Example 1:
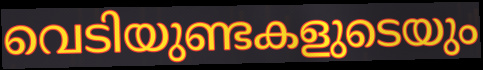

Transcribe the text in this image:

വെടിയുണ്ടകളുടെയും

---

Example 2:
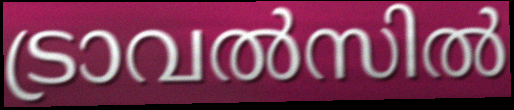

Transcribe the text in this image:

ട്രാവൽസിൽ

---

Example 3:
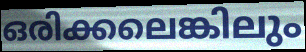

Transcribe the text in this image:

ഒരിക്കലെങ്കിലും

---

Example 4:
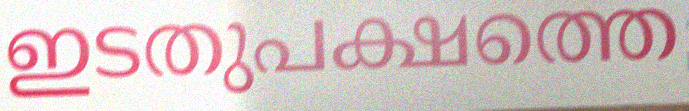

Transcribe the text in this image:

ഇടതുപക്ഷത്തെ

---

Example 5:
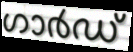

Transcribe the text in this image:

ഗാർഡ്